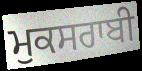
ਮੁਕਸਰਾਬੀ